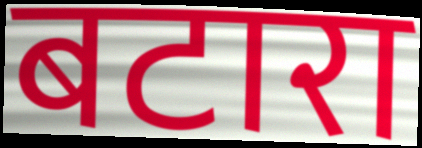
बटारा